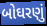
બોઘરણું